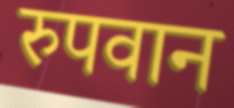
रुपवान